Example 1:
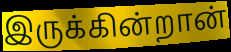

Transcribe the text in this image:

இருக்கின்றான்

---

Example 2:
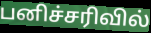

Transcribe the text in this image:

பனிச்சரிவில்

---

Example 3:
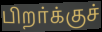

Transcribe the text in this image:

பிறர்க்குச்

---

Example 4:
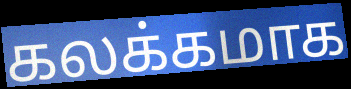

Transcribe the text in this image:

கலக்கமாக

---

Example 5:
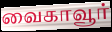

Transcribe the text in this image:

வைகாவூர்